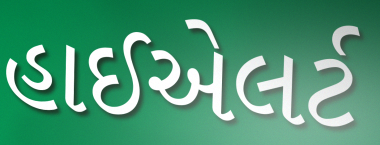
હાઈએલર્ટ